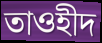
তাওহীদ